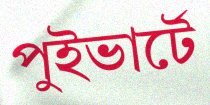
পুইভার্টে